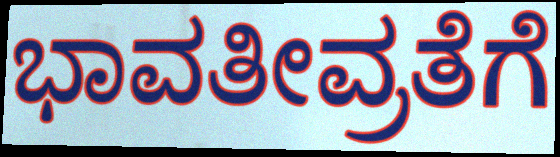
ಭಾವತೀವ್ರತೆಗೆ